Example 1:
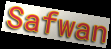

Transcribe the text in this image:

Safwan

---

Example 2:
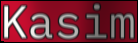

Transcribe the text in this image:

Kasim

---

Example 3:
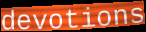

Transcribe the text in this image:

devotions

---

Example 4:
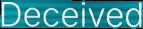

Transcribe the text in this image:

Deceived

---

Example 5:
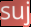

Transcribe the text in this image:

suj